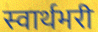
स्वार्थभरी